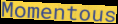
Momentous